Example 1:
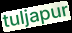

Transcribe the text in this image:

tuljapur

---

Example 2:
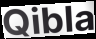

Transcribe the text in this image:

Qibla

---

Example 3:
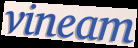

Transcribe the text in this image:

vineam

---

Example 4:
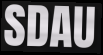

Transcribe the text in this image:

SDAU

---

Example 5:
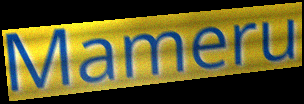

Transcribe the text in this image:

Mameru